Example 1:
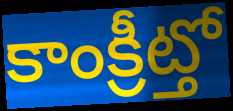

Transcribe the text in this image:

కాంక్రీట్తో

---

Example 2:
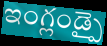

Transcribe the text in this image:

ఇంగ్లండ్పై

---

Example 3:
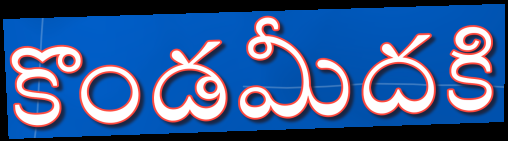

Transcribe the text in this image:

కొండమీదకి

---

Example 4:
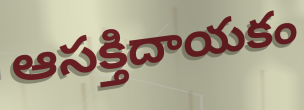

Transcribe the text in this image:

ఆసక్తిదాయకం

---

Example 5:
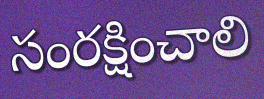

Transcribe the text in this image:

సంరక్షించాలి